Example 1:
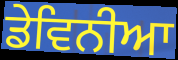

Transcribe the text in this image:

ਡੇਵਿਨੀਆ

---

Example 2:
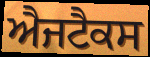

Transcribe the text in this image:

ਐਜਟੈਕਸ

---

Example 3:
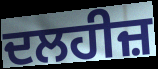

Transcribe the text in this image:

ਦਲਹੀਜ਼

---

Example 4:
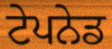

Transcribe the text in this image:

ਟੇਪਨੇਡ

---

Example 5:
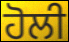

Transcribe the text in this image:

ਹੋਲੀ